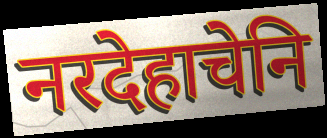
नरदेहाचेनि